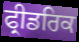
ਫ੍ਰੀਡਰਿਕ